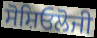
ਸੋਸ਼ਿਓਲੋਜੀ